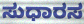
ಸುಧಾರಸ